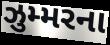
ઝુમ્મરના